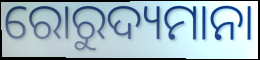
ରୋରୁଦ୍ୟମାନା